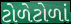
ટોળેટોળાં